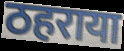
ठहराया